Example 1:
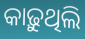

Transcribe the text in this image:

କାଢ଼ୁଥିଲି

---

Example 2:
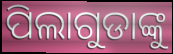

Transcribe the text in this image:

ପିଲାଗୁଡାଙ୍କୁ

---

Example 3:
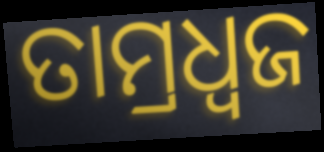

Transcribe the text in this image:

ତାମ୍ରଧ୍ୱଜ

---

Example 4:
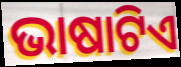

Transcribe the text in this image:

ଭାଷାଟିଏ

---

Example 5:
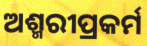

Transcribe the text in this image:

ଅଶ୍ମରୀପ୍ରକର୍ମ